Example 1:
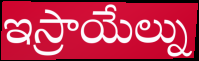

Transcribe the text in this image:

ఇస్రాయేల్ను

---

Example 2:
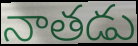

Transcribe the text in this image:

నాతడు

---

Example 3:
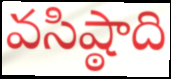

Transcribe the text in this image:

వసిష్ఠాది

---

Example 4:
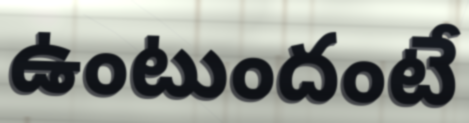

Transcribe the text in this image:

ఉంటుందంటే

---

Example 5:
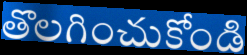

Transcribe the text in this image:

తొలగించుకోండి